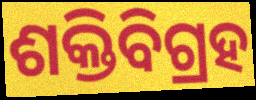
ଶକ୍ତିବିଗ୍ରହ